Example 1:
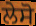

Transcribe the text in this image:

ਲੇਸੋ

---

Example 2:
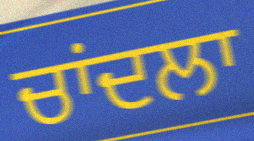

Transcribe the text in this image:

ਚਾਂਦਲਾ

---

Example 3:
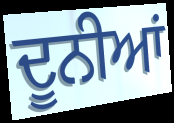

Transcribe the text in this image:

ਦੂਨੀਆਂ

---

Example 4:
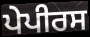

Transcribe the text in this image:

ਪੇਪੀਰਸ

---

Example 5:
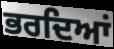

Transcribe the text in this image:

ਭਰਦਿਆਂ